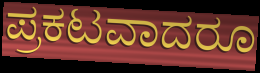
ಪ್ರಕಟವಾದರೂ